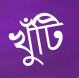
খুঁটি